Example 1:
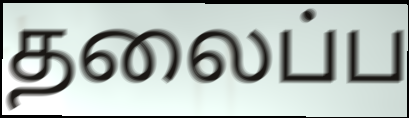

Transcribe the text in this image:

தலைப்ப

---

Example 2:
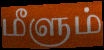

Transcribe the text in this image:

மீளும்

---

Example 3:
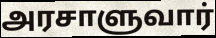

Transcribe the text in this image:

அரசாளுவார்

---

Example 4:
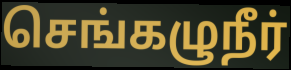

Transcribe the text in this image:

செங்கழுநீர்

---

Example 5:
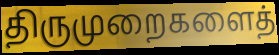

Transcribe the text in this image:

திருமுறைகளைத்